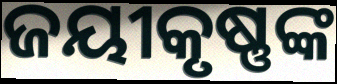
ଜୟୀକୃଷ୍ଣଙ୍କ